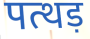
पत्थड़